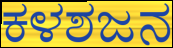
ಕಳಶಜನ